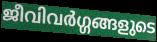
ജീവിവർഗ്ഗങ്ങളുടെ